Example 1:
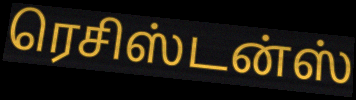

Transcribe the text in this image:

ரெசிஸ்டன்ஸ்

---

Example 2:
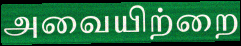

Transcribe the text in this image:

அவையிற்றை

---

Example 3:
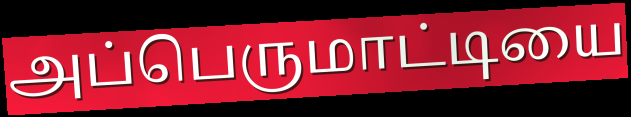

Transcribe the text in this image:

அப்பெருமாட்டியை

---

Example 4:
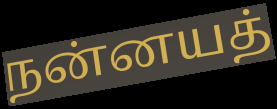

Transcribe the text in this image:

நன்னயத்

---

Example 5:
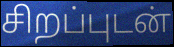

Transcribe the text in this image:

சிறப்புடன்